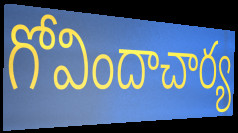
గోవిందాచార్య